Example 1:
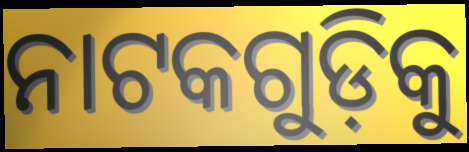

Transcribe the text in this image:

ନାଟକଗୁଡ଼ିକୁ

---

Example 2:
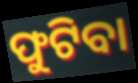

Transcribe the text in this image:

ଫୁଟିବା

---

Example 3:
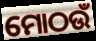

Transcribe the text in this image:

ମୋଠଉଁ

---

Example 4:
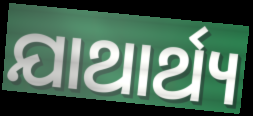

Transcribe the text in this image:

ଯାଥାର୍ଥ୍ୟ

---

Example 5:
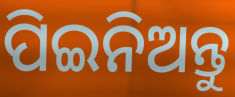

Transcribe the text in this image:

ପିଇନିଅନ୍ତୁ